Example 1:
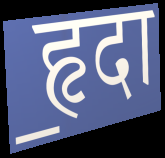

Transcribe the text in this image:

हृ॒दा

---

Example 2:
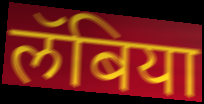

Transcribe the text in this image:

लॅबिया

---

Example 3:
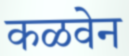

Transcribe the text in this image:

कळवेन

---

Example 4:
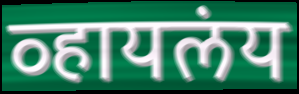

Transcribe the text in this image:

व्हायलंय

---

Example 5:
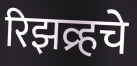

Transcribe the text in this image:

रिझव्र्हचे